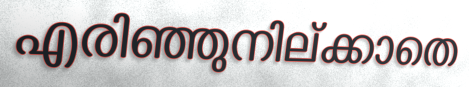
എരിഞ്ഞുനില്ക്കാതെ